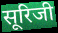
सूरिजी